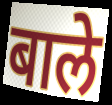
बाले